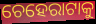
ଚେହେରାଟାକୁ